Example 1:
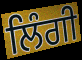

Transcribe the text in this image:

ਲਿੰਗੀ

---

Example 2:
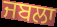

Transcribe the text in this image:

ਜਬਲਾ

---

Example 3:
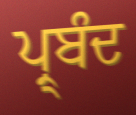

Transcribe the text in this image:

ਪ੍ਰ੍ਬੰਦ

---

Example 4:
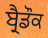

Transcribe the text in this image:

ਬ੍ਰੈਡੌਕ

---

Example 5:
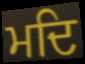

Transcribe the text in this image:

ਮਦਿ